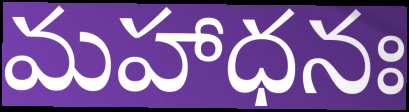
మహాధనః